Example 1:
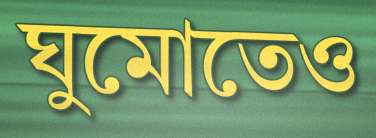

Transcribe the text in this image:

ঘুমোতেও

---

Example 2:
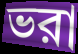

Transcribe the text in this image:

ভরা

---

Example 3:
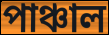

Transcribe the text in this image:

পাঞ্চাল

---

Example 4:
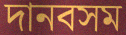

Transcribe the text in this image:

দানবসম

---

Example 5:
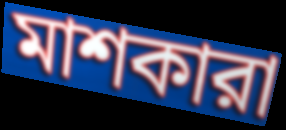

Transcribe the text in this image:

মাশকারা